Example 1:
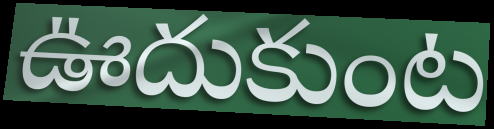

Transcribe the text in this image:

ఊదుకుంట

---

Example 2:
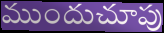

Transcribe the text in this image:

ముందుచూపు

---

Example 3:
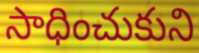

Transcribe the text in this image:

సాధించుకుని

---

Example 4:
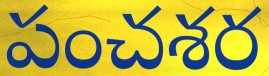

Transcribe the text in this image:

పంచశర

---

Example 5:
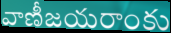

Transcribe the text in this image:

వాణీజయరాంకు